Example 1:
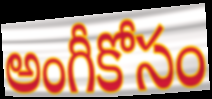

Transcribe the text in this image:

అంగీకోసం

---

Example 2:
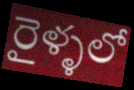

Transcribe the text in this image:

రైళ్ళలో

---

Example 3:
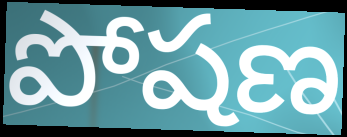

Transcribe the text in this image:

పోషణ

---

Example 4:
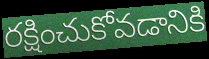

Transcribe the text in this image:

రక్షించుకోవడానికి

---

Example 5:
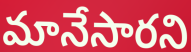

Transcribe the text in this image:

మానేసారని